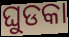
ଘୁଡକା